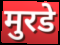
मुरडे